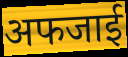
अफजाई